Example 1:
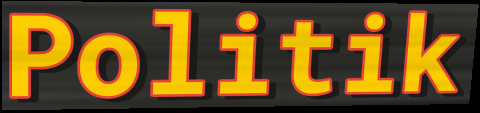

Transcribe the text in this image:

Politik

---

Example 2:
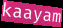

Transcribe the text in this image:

kaayam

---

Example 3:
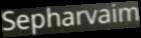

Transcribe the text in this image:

Sepharvaim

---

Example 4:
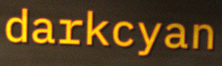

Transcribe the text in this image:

darkcyan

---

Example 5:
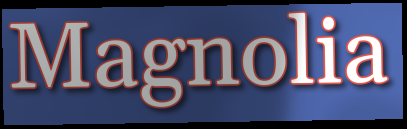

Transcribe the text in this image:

Magnolia